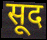
सूद